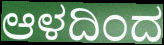
ಆಳದಿಂದ